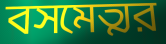
বসমেত্মর